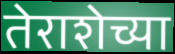
तेराशेच्या